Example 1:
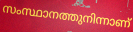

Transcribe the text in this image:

സംസ്ഥാനത്തുനിന്നാണ്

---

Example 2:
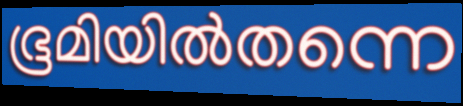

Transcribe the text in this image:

ഭൂമിയിൽതന്നെ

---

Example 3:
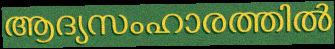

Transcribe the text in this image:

ആദ്യസംഹാരത്തിൽ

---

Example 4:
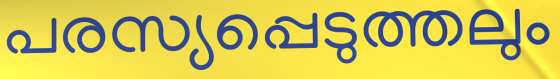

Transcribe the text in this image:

പരസ്യപ്പെടുത്തലും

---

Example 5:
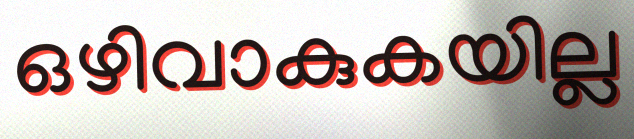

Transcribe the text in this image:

ഒഴിവാകുകയില്ല